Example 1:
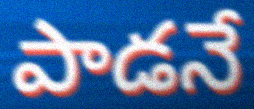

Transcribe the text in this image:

పాడనే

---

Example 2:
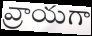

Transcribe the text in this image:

వ్రాయగా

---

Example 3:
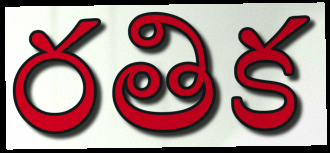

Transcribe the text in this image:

రతిక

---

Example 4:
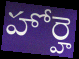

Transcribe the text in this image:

హోర్హె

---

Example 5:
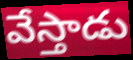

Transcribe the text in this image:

వేస్తాడు